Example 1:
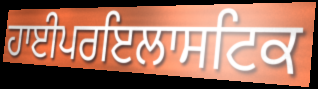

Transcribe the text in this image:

ਹਾਈਪਰਇਲਾਸਟਿਕ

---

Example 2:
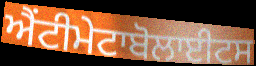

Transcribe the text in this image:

ਐਂਟੀਮੇਟਾਬੋਲਾਈਟਸ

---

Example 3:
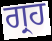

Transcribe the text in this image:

ਗ੍ਰਹ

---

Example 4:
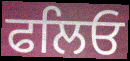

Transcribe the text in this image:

ਫਲਿਓ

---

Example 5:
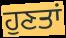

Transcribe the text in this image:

ਹੁਣਤਾਂ